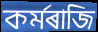
কৰ্মৰাজি